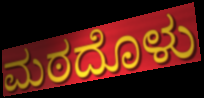
ಮಠದೊಳು